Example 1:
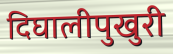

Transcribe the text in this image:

दिघालीपुखुरी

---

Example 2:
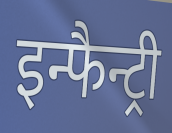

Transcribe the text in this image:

इन्फैन्ट्री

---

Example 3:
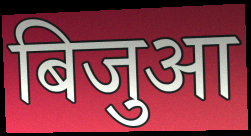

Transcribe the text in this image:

बिजुआ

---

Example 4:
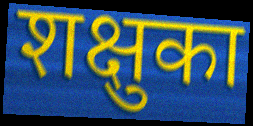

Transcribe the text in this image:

शक्षुका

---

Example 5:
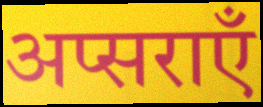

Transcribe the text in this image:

अप्सराएँ